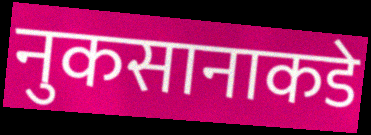
नुकसानाकडे